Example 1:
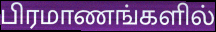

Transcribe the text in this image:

பிரமாணங்களில்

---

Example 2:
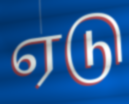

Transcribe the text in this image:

ஏடு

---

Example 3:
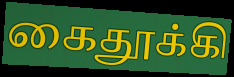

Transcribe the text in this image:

கைதூக்கி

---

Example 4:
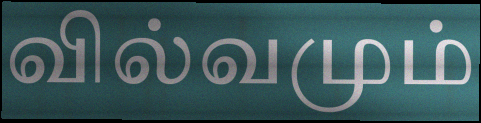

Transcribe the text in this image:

வில்வமும்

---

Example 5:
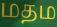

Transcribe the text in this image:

மதம